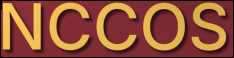
NCCOS